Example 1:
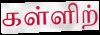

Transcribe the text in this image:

கள்ளிற்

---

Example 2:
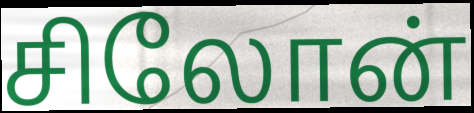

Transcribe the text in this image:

சிலோன்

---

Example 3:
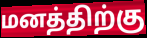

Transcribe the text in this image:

மனத்திற்கு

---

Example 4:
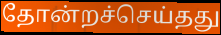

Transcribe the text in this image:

தோன்றச்செய்தது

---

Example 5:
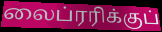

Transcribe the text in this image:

லைப்ரரிக்குப்